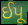
ઈપૂ